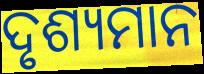
ଦୃଶ୍ୟମାନ